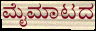
ಮೈಮಾಟದ